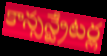
కాన్సన్ట్రేటర్ల